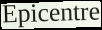
Epicentre